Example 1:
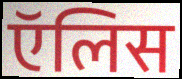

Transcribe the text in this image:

ऍलिस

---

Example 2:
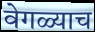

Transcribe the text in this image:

वेगळ्याच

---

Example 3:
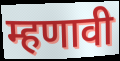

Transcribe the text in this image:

म्हणावी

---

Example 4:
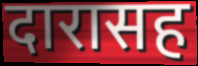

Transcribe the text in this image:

दारासह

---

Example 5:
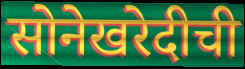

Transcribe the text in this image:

सोनेखरेदीची